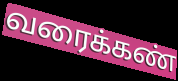
வரைக்கண்